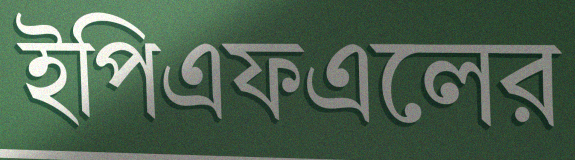
ইপিএফএলের